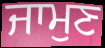
ਜਾਮੁਣ